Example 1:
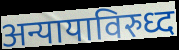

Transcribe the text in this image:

अन्यायाविरुध्द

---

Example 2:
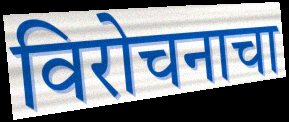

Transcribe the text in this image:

विरोचनाचा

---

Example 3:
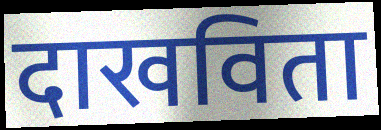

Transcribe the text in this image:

दाखविता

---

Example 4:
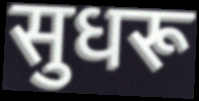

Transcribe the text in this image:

सुधरू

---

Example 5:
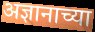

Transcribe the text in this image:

अज्ञानाच्या